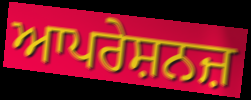
ਆਪਰੇਸ਼ਨਜ਼